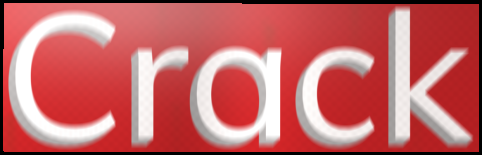
Crack